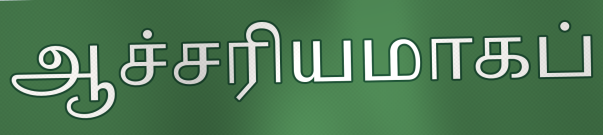
ஆச்சரியமாகப்